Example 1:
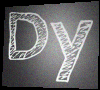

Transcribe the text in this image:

Dy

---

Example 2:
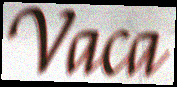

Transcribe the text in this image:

Vaca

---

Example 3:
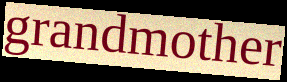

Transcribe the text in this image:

grandmother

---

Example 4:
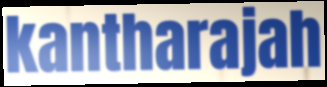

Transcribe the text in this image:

kantharajah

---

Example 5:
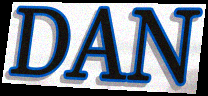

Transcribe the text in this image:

DAN